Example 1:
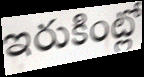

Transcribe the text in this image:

ఇరుకింట్లో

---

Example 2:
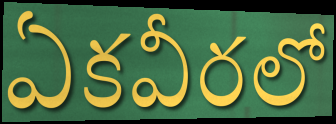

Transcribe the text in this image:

ఏకవీరలో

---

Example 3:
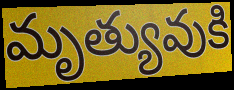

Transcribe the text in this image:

మృత్యువుకి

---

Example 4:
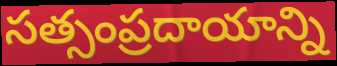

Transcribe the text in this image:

సత్సంప్రదాయాన్ని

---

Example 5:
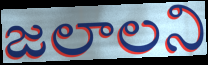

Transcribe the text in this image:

జలాలని